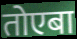
तोएबा